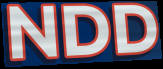
NDD